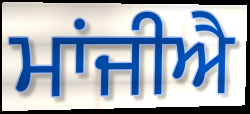
ਮਾਂਜੀਐ